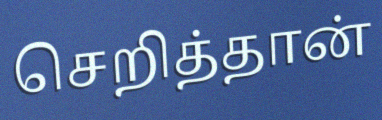
செறித்தான்